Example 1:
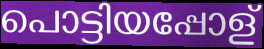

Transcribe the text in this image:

പൊട്ടിയപ്പോള്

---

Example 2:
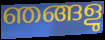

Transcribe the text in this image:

ഞങ്ങളു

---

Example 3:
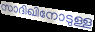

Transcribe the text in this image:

സാദിഖിനോടുള്ള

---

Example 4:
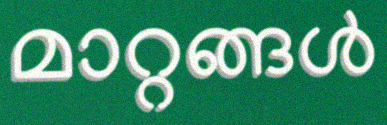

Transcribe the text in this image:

മാറ്റങ്ങൾ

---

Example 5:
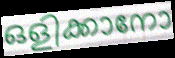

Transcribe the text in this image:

ഒളിക്കാനോ